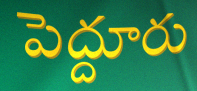
పెద్దూరు